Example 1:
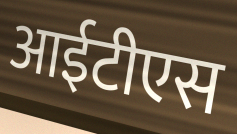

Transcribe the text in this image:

आईटीएस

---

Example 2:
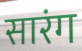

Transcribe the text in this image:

सारंग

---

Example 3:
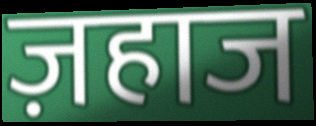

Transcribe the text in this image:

ज़हाज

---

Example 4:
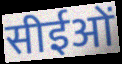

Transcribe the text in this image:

सीईओं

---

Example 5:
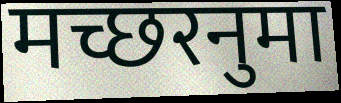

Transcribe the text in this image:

मच्छरनुमा